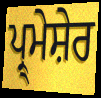
ਪ੍ਰ੍ਮੇਸ਼ੇਰ